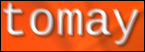
tomay